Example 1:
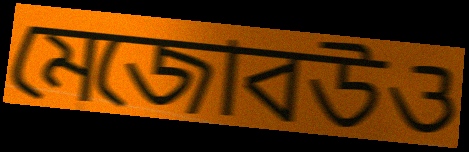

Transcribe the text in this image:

মেজোবউও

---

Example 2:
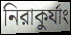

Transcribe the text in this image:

নিরাকুর্যাং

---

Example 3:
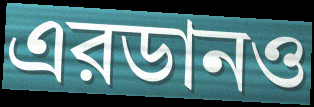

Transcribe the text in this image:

এরডানও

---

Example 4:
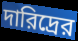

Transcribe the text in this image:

দারিদ্রের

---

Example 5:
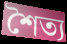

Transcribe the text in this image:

শৈত্য